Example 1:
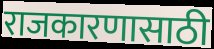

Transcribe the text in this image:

राजकारणासाठी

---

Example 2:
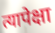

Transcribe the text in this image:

त्यापेक्षा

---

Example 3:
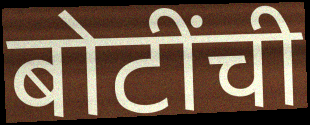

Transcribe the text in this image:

बोटींची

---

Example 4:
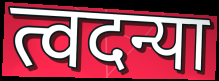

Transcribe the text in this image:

त्वदन्या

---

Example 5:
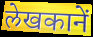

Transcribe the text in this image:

लेखकानें